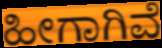
ಹೀಗಾಗಿವೆ